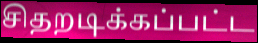
சிதறடிக்கப்பட்ட